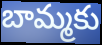
బామ్మకు